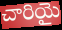
చారియై